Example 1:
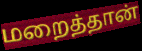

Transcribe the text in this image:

மறைத்தான்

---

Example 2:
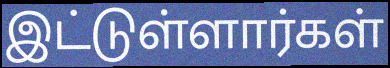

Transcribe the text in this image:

இட்டுள்ளார்கள்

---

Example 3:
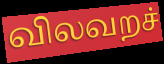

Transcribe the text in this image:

விலவறச்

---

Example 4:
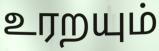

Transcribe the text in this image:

உரறயும்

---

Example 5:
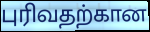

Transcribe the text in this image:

புரிவதற்கான